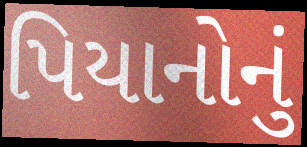
પિયાનોનું